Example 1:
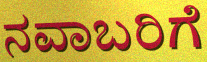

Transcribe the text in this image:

ನವಾಬರಿಗೆ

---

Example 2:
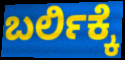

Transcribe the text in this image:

ಬರ್ಲಿಕ್ಕೆ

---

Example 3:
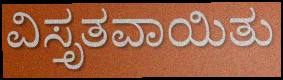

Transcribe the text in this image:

ವಿಸ್ತೃತವಾಯಿತು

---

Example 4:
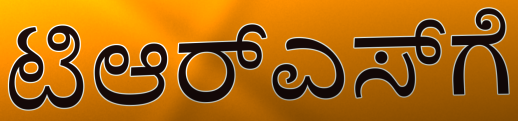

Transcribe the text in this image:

ಟಿಆರ್‌ಎಸ್‌ಗೆ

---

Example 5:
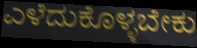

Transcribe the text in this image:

ಎಳೆದುಕೊಳ್ಳಬೇಕು